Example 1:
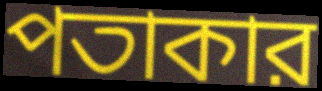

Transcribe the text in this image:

পতাকার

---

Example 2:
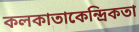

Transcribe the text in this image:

কলকাতাকেন্দ্রিকতা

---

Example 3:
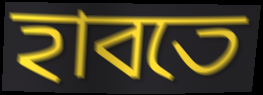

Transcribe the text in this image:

হাবতে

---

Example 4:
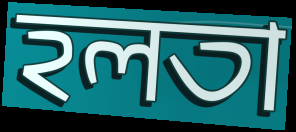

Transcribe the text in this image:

হলতা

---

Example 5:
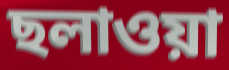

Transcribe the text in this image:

ছলাওয়া